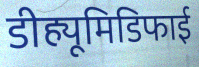
डीह्यूमिडिफाई